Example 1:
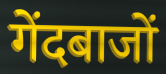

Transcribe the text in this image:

गेंदबाजों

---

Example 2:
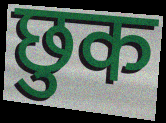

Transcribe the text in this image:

छुक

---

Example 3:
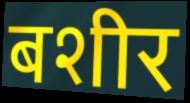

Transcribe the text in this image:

बशीर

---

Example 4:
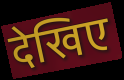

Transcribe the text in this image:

देखिए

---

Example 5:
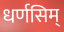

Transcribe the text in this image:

धर्णसिम्